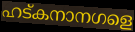
ഹട്കനാനഗളെ